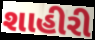
શાહીરી